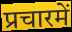
प्रचारमें